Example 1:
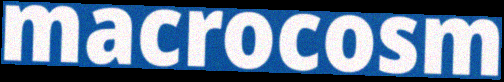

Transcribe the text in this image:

macrocosm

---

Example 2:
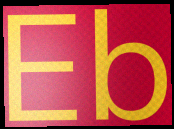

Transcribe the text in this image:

Eb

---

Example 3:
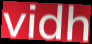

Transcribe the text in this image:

vidh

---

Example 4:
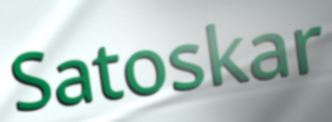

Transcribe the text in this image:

Satoskar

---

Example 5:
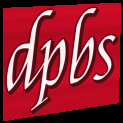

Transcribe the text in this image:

dpbs